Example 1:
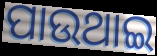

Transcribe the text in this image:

ପାଉଥାଇ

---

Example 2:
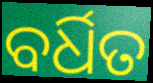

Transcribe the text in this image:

ବର୍ଧିତ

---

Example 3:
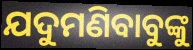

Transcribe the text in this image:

ଯଦୁମଣିବାବୁଙ୍କୁ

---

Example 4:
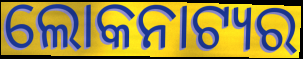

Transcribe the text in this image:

ଲୋକନାଟ୍ୟର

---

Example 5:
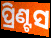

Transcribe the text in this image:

ପ୍ରିଣ୍ଟସ